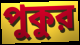
পুকুর